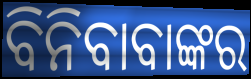
ବିନିବାବାଙ୍କର